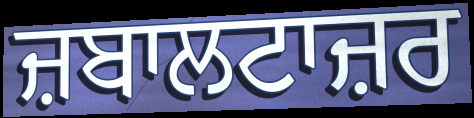
ਜ਼ਬਾਲਟਾਜ਼ਰ